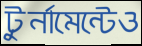
টুর্নামেন্টেও